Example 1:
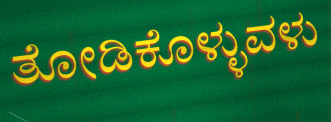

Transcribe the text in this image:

ತೋಡಿಕೊಳ್ಳುವಳು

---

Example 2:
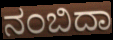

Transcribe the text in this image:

ನಂಬಿದಾ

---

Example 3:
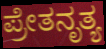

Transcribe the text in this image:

ಪ್ರೇತನೃತ್ಯ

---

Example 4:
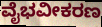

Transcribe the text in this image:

ವೈಭವೀಕರಣ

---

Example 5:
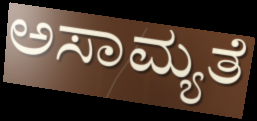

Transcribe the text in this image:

ಅಸಾಮ್ಯತೆ